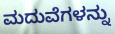
ಮದುವೆಗಳನ್ನು